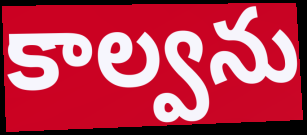
కాల్వను